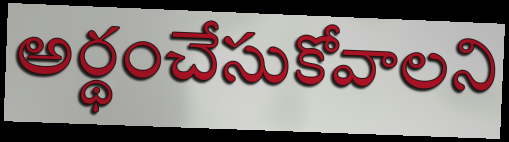
అర్థంచేసుకోవాలని